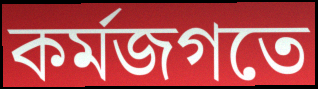
কর্মজগতে